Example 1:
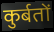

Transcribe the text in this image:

कुर्बतों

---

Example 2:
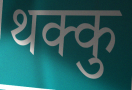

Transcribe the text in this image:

थक्कु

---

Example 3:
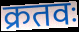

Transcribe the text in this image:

क्रतवः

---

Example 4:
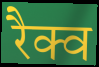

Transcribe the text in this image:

रैक्व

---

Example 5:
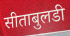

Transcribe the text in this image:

सीताबुलडी